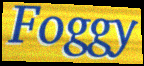
Foggy